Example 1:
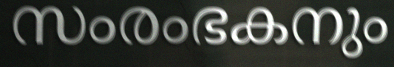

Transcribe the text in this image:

സംരംഭകനും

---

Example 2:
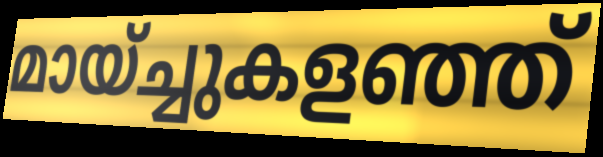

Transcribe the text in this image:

മായ്ച്ചുകളഞ്ഞ്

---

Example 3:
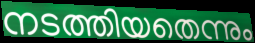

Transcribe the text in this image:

നടത്തിയതെന്നും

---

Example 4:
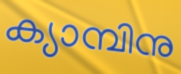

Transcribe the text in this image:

ക്യാമ്പിനു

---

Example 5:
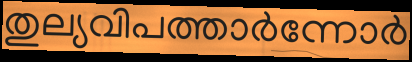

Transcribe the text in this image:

തുല്യവിപത്താർന്നോർ